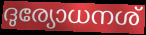
ദുര്യോധനശ്